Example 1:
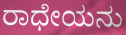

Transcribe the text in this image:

ರಾಧೇಯನು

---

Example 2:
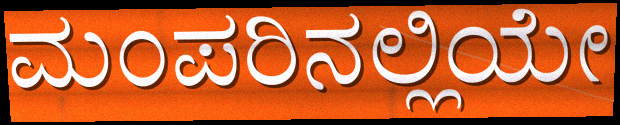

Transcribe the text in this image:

ಮಂಪರಿನಲ್ಲಿಯೇ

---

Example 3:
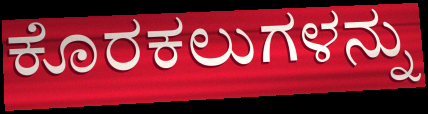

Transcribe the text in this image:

ಕೊರಕಲುಗಳನ್ನು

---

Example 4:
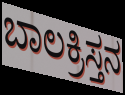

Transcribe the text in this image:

ಬಾಲಕ್ರಿಸ್ತನ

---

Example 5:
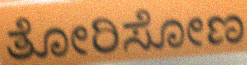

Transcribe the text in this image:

ತೋರಿಸೋಣ